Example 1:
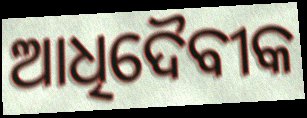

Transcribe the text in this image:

ଆଧିଦୈବୀକ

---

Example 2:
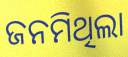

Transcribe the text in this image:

ଜନମିଥିଲା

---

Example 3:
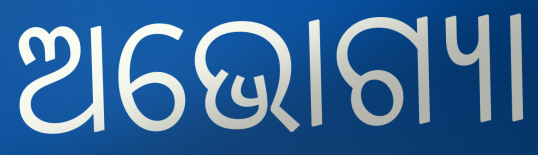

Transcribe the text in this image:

ଅଭୋଗ୍ୟା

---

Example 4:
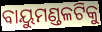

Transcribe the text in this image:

ବାୟୁମଣ୍ଡଳଟିକୁ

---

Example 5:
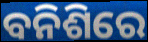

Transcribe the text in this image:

ବନିଶିରେ